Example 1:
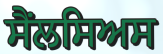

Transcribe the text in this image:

ਸੈਂਲਸਿਅਸ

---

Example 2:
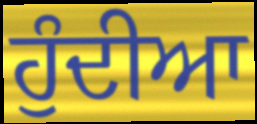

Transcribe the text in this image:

ਹੁੰਦੀਆ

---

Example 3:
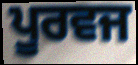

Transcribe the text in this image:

ਪੂਰਵਜ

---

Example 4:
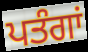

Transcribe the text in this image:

ਪਤੰਗਾਂ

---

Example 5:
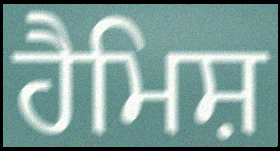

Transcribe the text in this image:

ਹੈਮਿਸ਼